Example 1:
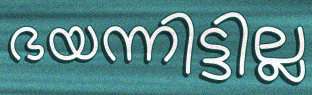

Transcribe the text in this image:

ഭയന്നിട്ടില്ല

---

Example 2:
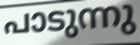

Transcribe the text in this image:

പാടുന്നു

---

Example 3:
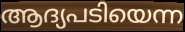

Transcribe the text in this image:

ആദ്യപടിയെന്ന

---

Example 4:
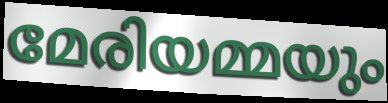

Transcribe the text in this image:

മേരിയമ്മയും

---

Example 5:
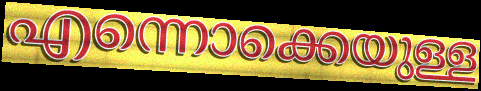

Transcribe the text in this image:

എന്നൊക്കെയുള്ള